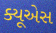
ક્યૂએસ